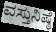
ವಸ್ತುನಿಷ್ಠೆ